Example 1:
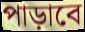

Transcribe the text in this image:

পাড়াবে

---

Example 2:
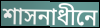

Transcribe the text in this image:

শাসনাধীনে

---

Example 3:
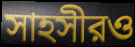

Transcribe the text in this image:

সাহসীরও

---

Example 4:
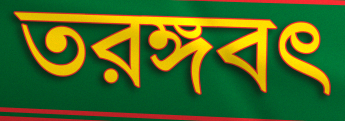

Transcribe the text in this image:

তরঙ্গবৎ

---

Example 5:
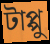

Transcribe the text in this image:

টাপ্পু